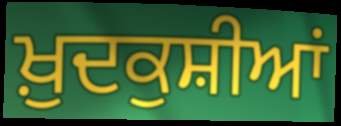
ਖ਼ੁਦਕੁਸ਼ੀਆਂ